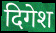
दिगेश